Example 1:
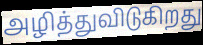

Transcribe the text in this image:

அழித்துவிடுகிறது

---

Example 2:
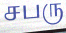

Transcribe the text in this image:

சபரு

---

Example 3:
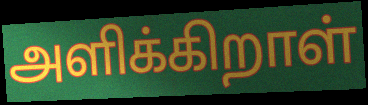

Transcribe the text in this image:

அளிக்கிறாள்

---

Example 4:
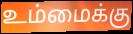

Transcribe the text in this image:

உம்மைக்கு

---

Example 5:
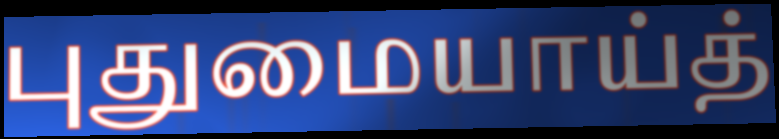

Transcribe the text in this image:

புதுமையாய்த்